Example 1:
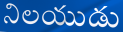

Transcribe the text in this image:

నిలయుడు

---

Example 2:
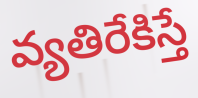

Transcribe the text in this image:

వ్యతిరేకిస్తే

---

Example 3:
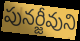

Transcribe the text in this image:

పునర్జీవుని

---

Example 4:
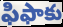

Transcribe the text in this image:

ఫిఫాకు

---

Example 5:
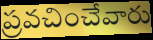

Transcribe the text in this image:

ప్రవచించేవారు